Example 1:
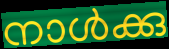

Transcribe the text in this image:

നാൾക്കു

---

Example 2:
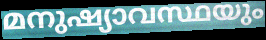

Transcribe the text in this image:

മനുഷ്യാവസ്ഥയും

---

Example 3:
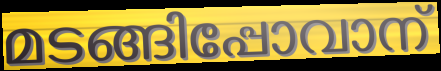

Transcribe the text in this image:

മടങ്ങിപ്പോവാന്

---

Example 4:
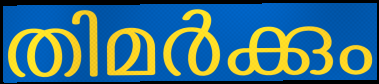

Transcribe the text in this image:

തിമർക്കും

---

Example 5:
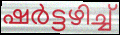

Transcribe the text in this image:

ഷർട്ടഴിച്ച്